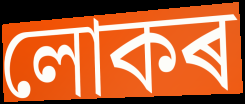
লোকৰ